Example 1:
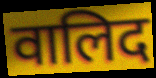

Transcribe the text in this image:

वालिद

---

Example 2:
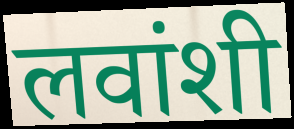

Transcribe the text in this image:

लवांशी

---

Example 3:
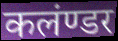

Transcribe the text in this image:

कलंण्डर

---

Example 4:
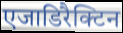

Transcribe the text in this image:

एजाडिरैक्टिन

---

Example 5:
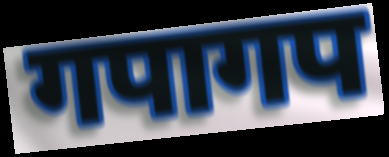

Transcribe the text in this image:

गपागप